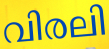
വിരലി